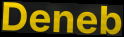
Deneb